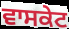
ਵਾਸਕੇਟ